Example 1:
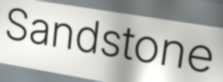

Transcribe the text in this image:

Sandstone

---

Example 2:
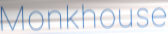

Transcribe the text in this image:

Monkhouse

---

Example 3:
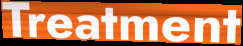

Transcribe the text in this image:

Treatment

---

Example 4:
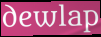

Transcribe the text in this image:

dewlap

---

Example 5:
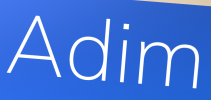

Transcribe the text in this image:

Adim